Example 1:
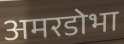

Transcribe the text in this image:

अमरडोभा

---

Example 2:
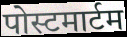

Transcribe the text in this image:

पोस्‍टमार्टम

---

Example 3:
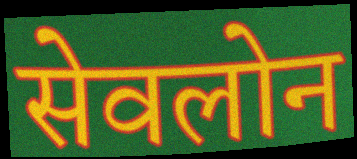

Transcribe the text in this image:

सेवलोन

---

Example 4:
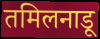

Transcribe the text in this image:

तमिलनाडू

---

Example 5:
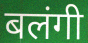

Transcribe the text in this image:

बलंगी